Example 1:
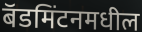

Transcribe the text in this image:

बॅडमिंटनमधील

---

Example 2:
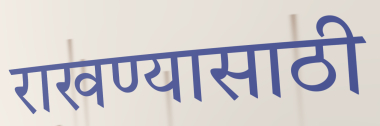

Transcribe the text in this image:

राखण्यासाठी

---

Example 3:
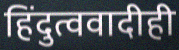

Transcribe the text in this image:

हिंदुत्ववादीही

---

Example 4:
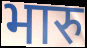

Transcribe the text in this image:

भारु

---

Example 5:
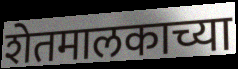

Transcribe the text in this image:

शेतमालकाच्या